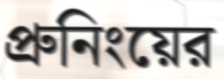
প্রুনিংয়ের